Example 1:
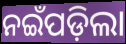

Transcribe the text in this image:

ନଇଁପଡ଼ିଲା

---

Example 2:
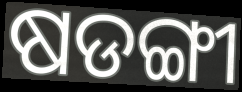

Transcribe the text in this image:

ଷଡଙ୍ଗୀ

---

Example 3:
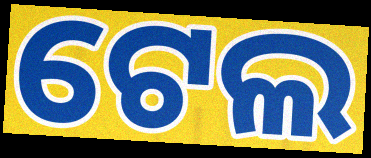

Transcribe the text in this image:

ଟେଲ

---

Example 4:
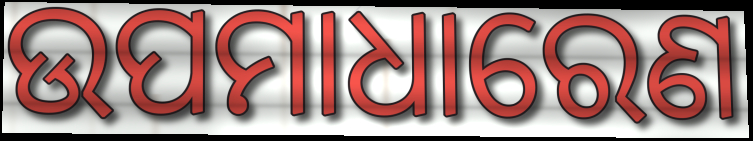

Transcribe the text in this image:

ଉପମାଧାରେଣ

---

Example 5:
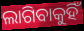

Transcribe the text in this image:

ଲାଗିବାକୁହିଁ